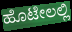
ಹೊಟೇಲಲ್ಲಿ